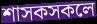
শাসকসকলে